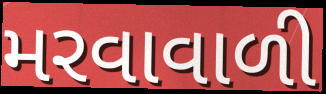
મરવાવાળી